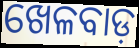
ଖେଳବାଡ଼